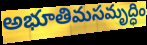
అభూతిమసమృద్ధిం